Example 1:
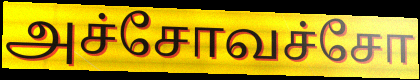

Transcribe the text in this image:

அச்சோவச்சோ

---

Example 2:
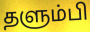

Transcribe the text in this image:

தளும்பி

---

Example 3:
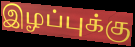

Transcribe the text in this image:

இழப்புக்கு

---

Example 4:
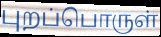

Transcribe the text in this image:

புறப்பொருள்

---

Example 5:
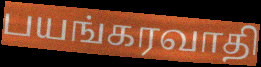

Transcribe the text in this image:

பயங்கரவாதி